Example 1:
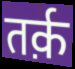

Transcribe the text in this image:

तर्क़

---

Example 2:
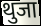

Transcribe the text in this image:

थुजा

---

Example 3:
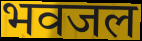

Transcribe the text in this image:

भवजल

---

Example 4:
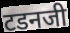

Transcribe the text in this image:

टडनजी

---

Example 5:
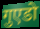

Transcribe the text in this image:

गुएडो